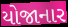
યોજાનાર